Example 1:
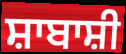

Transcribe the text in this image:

ਸ਼ਾਬਾਸ਼ੀ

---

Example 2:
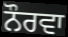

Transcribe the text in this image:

ਨੌਰਵਾ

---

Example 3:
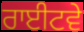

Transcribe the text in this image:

ਰਾਈਟਵੇ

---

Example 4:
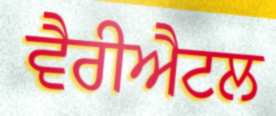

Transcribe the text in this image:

ਵੈਰੀਐਟਲ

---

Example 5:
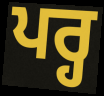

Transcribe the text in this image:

ਪਰ੍ਹ